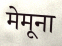
मेमूना